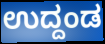
ಉದ್ದಂಡ